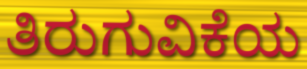
ತಿರುಗುವಿಕೆಯ